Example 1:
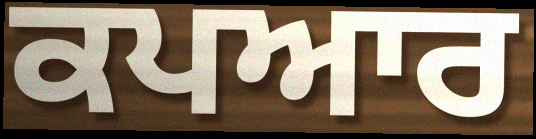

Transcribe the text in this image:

ਕਪਆਰ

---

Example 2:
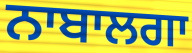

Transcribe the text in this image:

ਨਾਬਾਲਗਾ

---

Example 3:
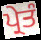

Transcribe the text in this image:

ਪ੍ਰੇਤੰ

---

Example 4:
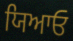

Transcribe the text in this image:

ਯਿਆਓ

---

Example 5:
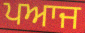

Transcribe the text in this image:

ਪਆਜ